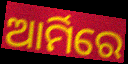
ଆର୍ମିରେ